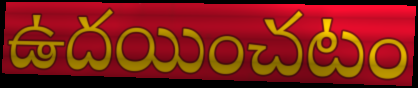
ఉదయించటం